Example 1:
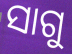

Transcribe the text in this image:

ସାଗୁ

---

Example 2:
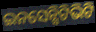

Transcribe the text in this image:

ଇନସେନ୍ସିଟିଭିଟି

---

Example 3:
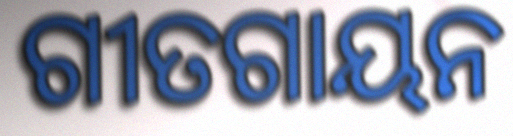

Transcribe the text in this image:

ଗୀତଗାୟନ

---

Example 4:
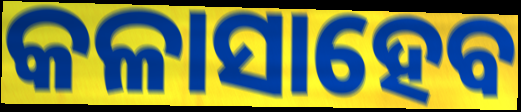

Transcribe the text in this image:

କଳାସାହେବ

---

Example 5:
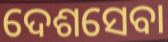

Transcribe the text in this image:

ଦେଶସେବା